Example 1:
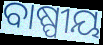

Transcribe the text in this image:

ବାଷ୍ପୀୟ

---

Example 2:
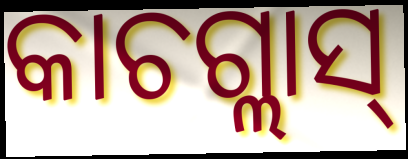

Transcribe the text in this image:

କାଚଗ୍ଲାସ୍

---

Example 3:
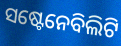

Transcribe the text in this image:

ସଷ୍ଟେନେବିଲିଟି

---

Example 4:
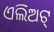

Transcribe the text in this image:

ଏଲିଅଟ୍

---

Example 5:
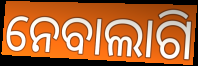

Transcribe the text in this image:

ନେବାଲାଗି